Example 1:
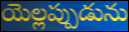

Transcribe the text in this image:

యెల్లప్పుడును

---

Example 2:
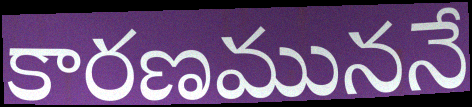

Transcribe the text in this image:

కారణముననే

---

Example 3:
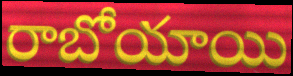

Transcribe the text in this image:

రాబోయాయి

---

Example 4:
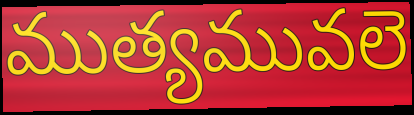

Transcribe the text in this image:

ముత్యమువలె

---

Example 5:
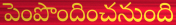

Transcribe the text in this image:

పెంపొందించనుంది